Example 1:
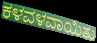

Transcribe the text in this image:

ಕಳವಳವಾಯಿತು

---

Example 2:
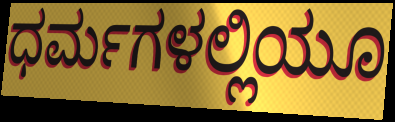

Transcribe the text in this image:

ಧರ್ಮಗಳಲ್ಲಿಯೂ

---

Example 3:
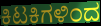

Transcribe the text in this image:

ಕಿಟಕಿಗಳಿಂದ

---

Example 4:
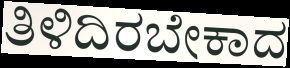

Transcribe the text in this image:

ತಿಳಿದಿರಬೇಕಾದ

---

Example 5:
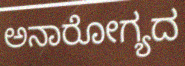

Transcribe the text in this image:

ಅನಾರೋಗ್ಯದ